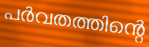
പർവതത്തിന്റെ